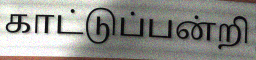
காட்டுப்பன்றி